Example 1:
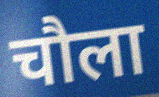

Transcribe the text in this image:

चौला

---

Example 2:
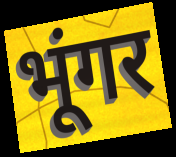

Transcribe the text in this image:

भूंगर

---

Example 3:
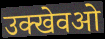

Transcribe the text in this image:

उक्खेवओ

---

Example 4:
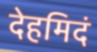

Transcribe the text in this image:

देहमिदं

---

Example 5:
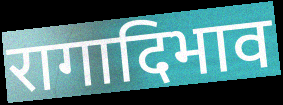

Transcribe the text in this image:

रागादिभाव